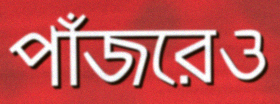
পাঁজরেও